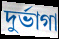
দুর্ভাগা